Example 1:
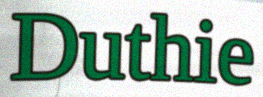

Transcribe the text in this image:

Duthie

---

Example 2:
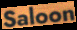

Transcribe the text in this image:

Saloon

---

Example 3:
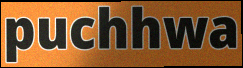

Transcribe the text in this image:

puchhwa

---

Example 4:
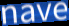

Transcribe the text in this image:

nave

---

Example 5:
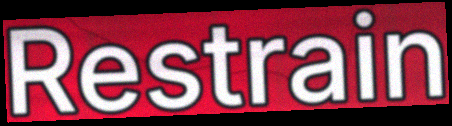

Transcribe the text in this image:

Restrain